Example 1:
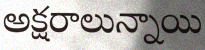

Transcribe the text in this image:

అక్షరాలున్నాయి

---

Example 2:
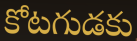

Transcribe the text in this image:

కోటగుడకు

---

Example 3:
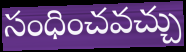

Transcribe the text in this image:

సంధించవచ్చు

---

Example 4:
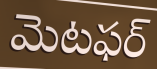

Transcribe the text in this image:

మెటఫర్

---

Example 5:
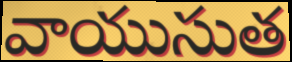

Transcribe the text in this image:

వాయుసుత